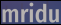
mridu